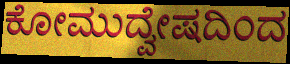
ಕೋಮುದ್ವೇಷದಿಂದ